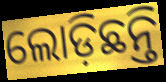
ଲୋଡ଼ିଛନ୍ତି